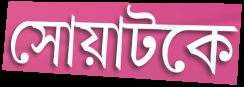
সোয়াটকে